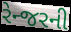
રેન્જરની